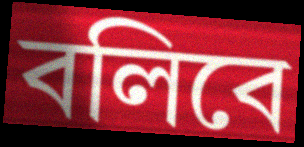
বলিবে